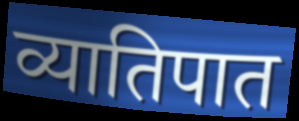
व्यातिपात